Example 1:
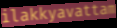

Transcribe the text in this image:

ilakkyavattam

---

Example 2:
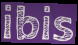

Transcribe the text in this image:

ibis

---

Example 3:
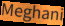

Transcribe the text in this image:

Meghani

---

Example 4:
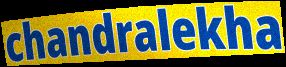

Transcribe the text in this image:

chandralekha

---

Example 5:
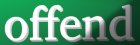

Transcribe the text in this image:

offend